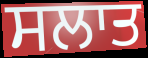
ਸਲਾਤ